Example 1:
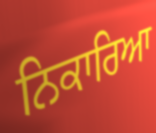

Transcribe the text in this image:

ਨਿਕਾਰਿਆ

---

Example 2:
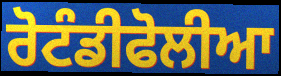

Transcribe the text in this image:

ਰੋਟੰਡੀਫੋਲੀਆ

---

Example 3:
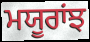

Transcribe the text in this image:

ਮਯੂਰਾਂਝ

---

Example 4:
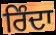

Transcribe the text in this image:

ਰਿੰਦਾ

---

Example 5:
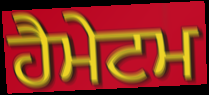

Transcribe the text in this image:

ਹੈਮੇਟਮ